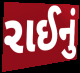
રાઈનું